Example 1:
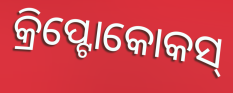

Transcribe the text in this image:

କ୍ରିପ୍ଟୋକୋକସ୍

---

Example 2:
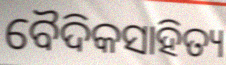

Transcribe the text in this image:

ବୈଦିକସାହିତ୍ୟ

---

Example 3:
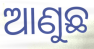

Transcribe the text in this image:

ଆଣୁଛ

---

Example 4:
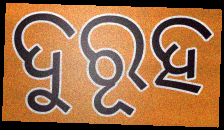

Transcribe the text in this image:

ଦୁରୂହ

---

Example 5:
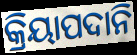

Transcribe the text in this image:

କ୍ରିୟାପଦାନି